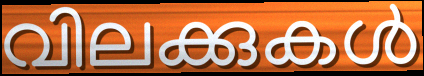
വിലക്കുകൾ